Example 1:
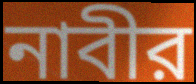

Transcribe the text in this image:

নাবীর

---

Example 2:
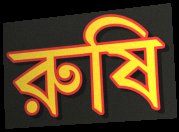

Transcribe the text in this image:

রুষি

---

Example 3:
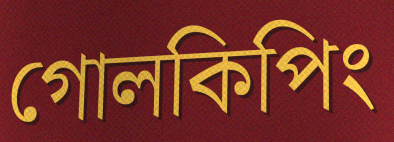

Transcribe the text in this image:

গোলকিপিং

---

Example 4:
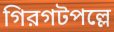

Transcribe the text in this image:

গিরগটপল্লে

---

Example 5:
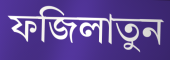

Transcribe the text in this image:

ফজিলাতুন